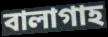
বালাগাহ